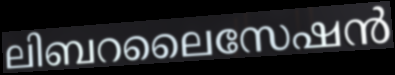
ലിബറലൈസേഷൻ